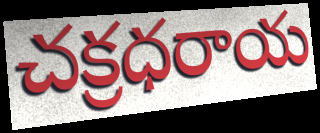
చక్రధరాయ